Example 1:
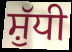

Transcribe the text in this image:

ਸ਼ੁੱਧੀ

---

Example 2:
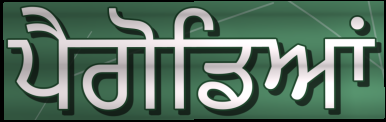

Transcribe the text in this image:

ਪੈਗੋਡਿਆਂ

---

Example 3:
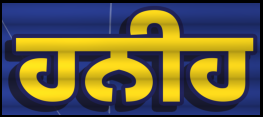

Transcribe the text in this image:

ਹਨੀਹ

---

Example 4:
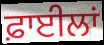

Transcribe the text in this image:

ਫ਼ਾਈਲਾਂ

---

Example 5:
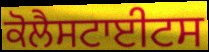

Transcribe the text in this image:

ਕੋਲੈਸਟਾਈਟਸ